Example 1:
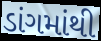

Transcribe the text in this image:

ડાંગમાંથી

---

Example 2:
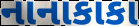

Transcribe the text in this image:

નાનાકાકા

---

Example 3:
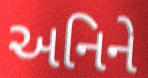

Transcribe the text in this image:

અનિને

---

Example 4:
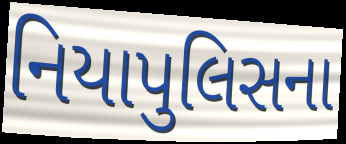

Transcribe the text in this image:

નિયાપુલિસના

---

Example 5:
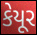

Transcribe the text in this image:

કેયૂર